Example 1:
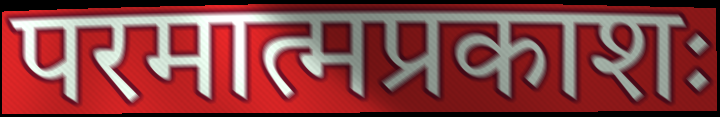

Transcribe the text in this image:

परमात्मप्रकाशः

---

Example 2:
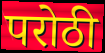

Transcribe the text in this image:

परोठी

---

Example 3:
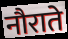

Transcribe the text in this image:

नौराते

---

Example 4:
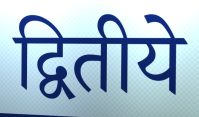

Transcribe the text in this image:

द्वितीये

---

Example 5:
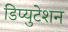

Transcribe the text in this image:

डिप्युटेशन